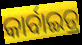
କାର୍ବାଇଡ୍ର